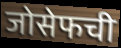
जोसेफची